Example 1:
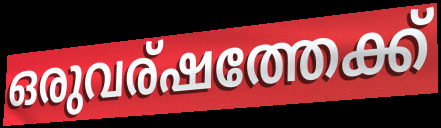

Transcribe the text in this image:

ഒരുവര്ഷത്തേക്ക്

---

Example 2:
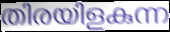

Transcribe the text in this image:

തിരയിളകുന്ന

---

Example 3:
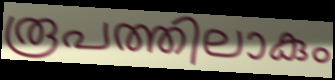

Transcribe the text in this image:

രൂപത്തിലാകും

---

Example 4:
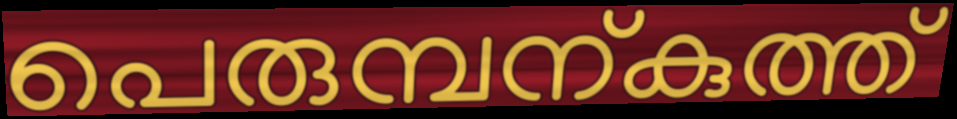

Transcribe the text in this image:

പെരുമ്പന്കുത്ത്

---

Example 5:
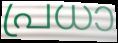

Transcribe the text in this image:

പ്രധാ